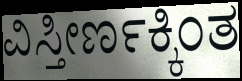
ವಿಸ್ತೀರ್ಣಕ್ಕಿಂತ